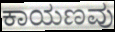
ಕಾಯಣವು